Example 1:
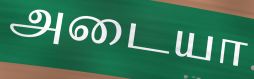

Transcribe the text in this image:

அடையா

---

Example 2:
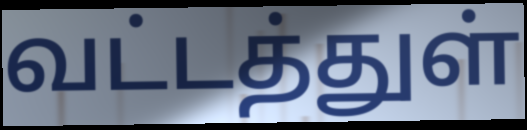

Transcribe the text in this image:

வட்டத்துள்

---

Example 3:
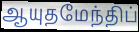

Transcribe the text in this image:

ஆயுதமேந்திப்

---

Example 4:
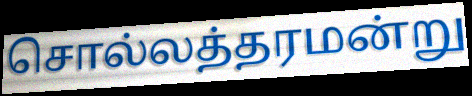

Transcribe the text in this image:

சொல்லத்தரமன்று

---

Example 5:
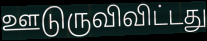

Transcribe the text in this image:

ஊடுருவிவிட்டது